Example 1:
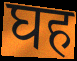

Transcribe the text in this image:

घह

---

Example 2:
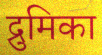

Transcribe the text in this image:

द्रुमिका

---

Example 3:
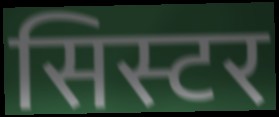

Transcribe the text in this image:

सिस्टर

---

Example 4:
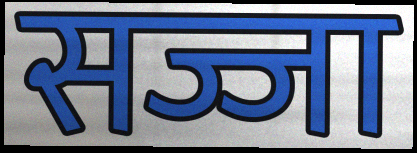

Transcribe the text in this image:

सज्जा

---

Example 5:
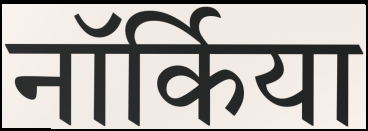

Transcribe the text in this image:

नॉर्किया